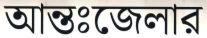
আন্তঃজেলার